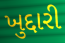
ખુદ્દારી